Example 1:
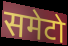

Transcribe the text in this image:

समेटो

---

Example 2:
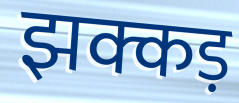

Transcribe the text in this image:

झक्कड़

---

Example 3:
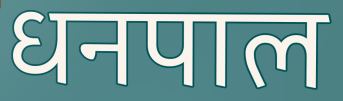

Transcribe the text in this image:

धनपाल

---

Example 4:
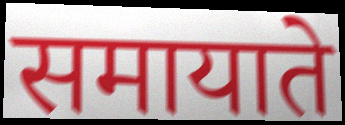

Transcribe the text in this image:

समायाते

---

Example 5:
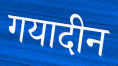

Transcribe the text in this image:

गयादीन